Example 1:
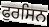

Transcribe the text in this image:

ਫੁਰਸਿਨ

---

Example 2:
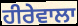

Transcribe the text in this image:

ਹੀਰੇਵਾਲਾ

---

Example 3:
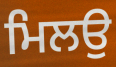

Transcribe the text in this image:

ਮਿਲਉ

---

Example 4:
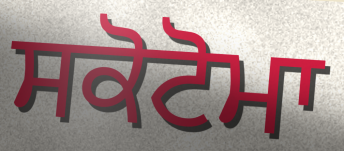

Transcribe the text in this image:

ਸਕੋਟੋਮਾ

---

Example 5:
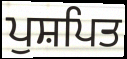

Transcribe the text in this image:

ਪੁਸ਼ਪਿਤ